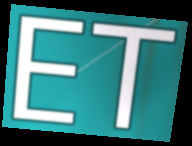
ET